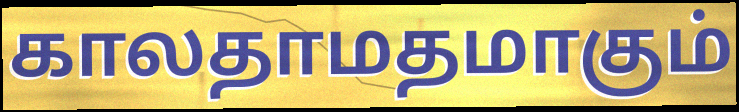
காலதாமதமாகும்